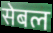
सेबल